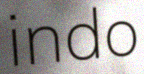
indo